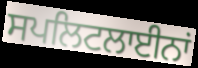
ਸਪਲਿਟਲਾਈਨਾਂ